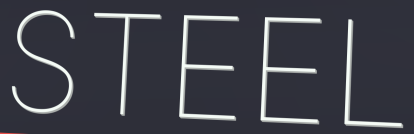
STEEL